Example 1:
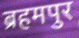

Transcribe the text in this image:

ब्रहमपुर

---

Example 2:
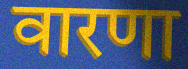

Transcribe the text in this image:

वारणा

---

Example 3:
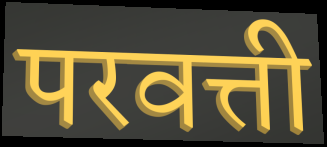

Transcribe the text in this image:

परवत्ती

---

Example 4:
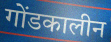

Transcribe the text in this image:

गोंडकालीन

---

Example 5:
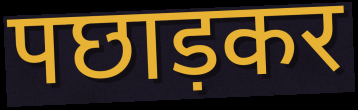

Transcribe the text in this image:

पछाड़कर